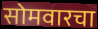
सोमवारचा